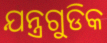
ଯନ୍ତ୍ରଗୁଡିକ